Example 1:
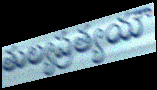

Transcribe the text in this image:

తుల్యప్రత్యయౌ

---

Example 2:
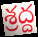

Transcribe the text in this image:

శ్రద్ద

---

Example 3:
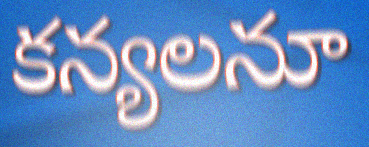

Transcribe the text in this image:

కన్యలనూ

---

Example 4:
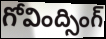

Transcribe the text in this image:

గోవింద్సింగ్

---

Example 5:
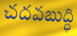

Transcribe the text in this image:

చదవబుద్ధి